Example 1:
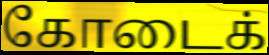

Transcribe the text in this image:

கோடைக்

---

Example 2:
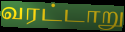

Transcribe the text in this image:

வரட்டாறு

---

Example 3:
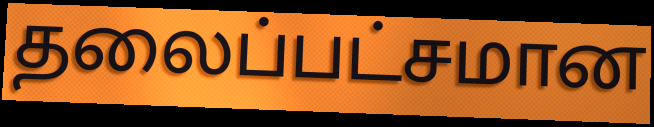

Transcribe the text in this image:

தலைப்பட்சமான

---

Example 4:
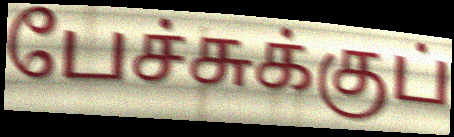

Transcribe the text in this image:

பேச்சுக்குப்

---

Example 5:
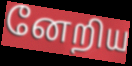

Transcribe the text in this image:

னேறிய